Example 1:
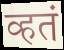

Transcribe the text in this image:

व्हतं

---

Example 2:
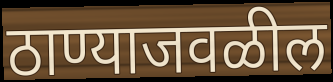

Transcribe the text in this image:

ठाण्याजवळील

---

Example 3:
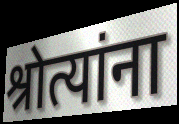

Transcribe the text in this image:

श्रोत्यांना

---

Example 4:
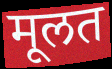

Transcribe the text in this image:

मूलत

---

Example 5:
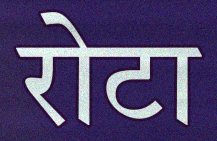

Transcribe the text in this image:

रोटा